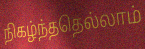
நிகழ்ந்ததெல்லாம்